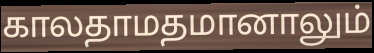
காலதாமதமானாலும்